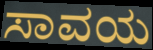
ಸಾವಯ